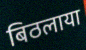
बिठलाया